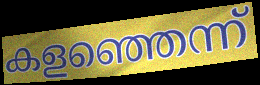
കളഞ്ഞെന്ന്